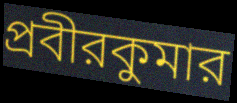
প্রবীরকুমার